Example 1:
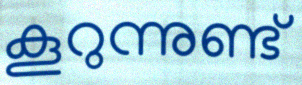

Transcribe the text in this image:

കൂറുന്നുണ്ട്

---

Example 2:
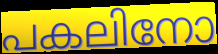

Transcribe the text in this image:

പകലിനോ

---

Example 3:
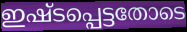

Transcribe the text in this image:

ഇഷ്ടപ്പെട്ടതോടെ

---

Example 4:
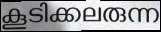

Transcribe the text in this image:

കൂടിക്കലരുന്ന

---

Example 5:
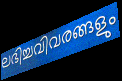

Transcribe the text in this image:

ലഭിച്ചവിവരങ്ങളും